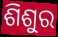
ଶିଶୁର